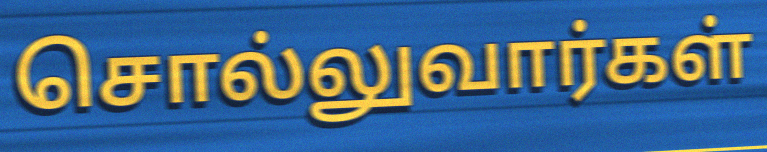
சொல்லுவார்கள்